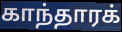
காந்தாரக்